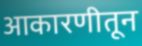
आकारणीतून